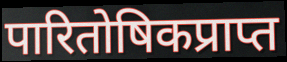
पारितोषिकप्राप्त